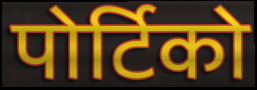
पोर्टिको